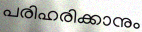
പരിഹരിക്കാനും